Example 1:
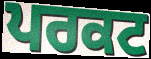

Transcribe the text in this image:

ਪਰਕਟ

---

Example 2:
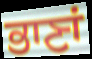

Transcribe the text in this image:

ਭਾਣਾਂ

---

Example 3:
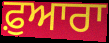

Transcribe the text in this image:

ਫ਼ੁਆਰਾ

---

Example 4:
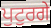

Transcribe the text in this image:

ਪੁਟੁਰਗੇ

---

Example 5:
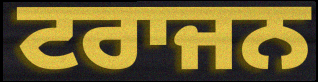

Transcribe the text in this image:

ਟਰਾਜਨ